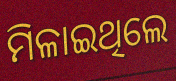
ମିଳାଇଥିଲେ